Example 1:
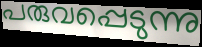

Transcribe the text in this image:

പരുവപ്പെടുന്നു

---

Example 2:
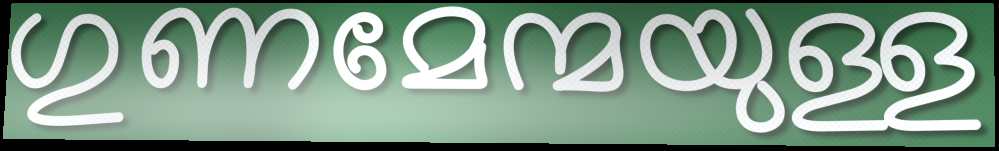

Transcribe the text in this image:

ഗുണമേന്മയുള്ള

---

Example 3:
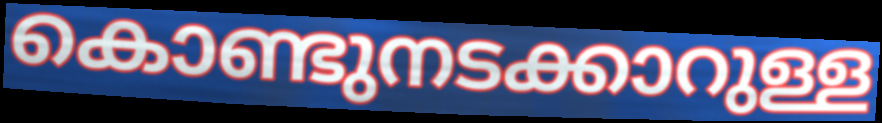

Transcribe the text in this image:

കൊണ്ടുനടക്കാറുള്ള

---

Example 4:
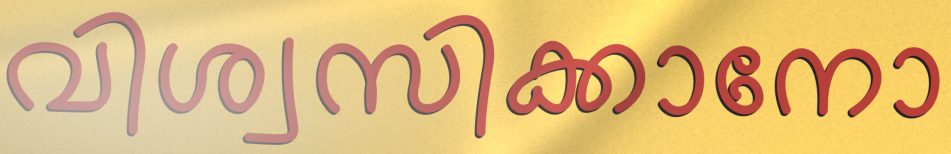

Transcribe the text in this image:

വിശ്വസിക്കാനോ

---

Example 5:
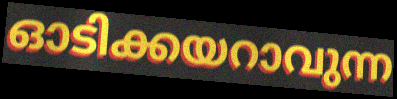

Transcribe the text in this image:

ഓടിക്കയറാവുന്ന